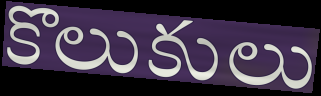
కొలుకులు